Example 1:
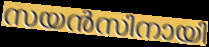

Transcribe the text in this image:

സയൻസിനായി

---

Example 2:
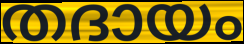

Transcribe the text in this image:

തദായം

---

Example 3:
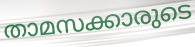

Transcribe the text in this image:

താമസക്കാരുടെ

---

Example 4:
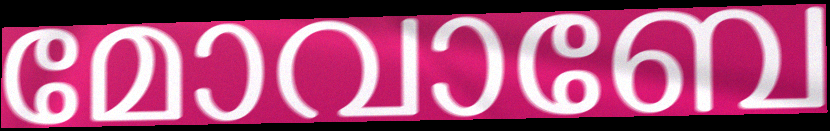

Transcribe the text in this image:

മോവാബേ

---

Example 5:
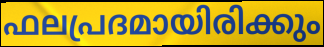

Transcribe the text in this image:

ഫലപ്രദമായിരിക്കും